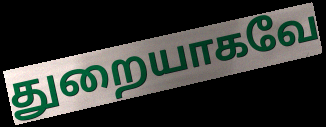
துறையாகவே